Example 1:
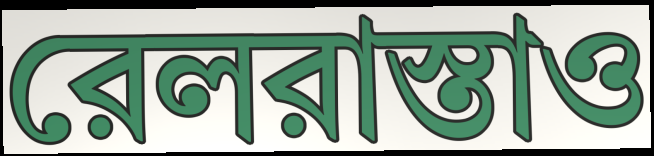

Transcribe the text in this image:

রেলরাস্তাও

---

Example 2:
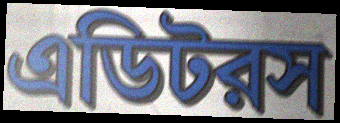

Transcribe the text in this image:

এডিটরস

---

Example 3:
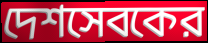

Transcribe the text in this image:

দেশসেবকের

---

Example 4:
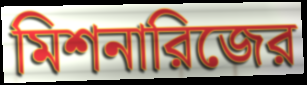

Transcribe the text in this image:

মিশনারিজের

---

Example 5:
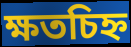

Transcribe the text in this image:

ক্ষতচিহ্ন